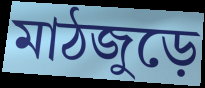
মাঠজুড়ে